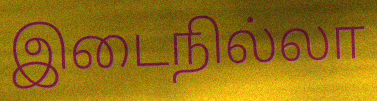
இடைநில்லா